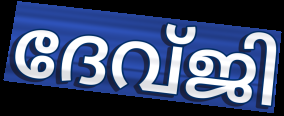
ദേവ്ജി